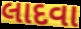
લાદવા